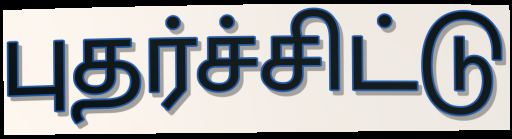
புதர்ச்சிட்டு